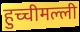
हुच्चीमल्ली